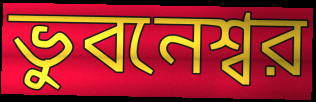
ভুবনেশ্বর